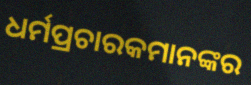
ଧର୍ମପ୍ରଚାରକମାନଙ୍କର